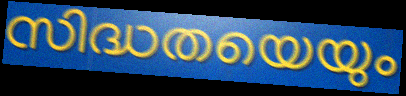
സിദ്ധതയെയും